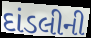
દાંડલીની